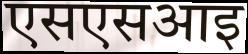
एसएसआइ